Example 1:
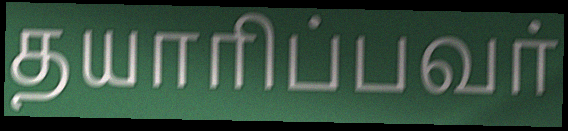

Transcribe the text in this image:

தயாரிப்பவர்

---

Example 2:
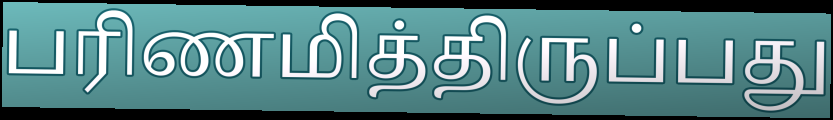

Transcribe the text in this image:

பரிணமித்திருப்பது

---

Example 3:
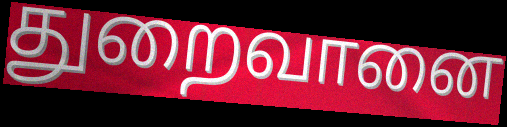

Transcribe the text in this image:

துறைவானை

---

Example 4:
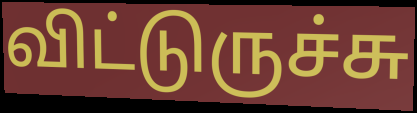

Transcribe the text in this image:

விட்டுருச்சு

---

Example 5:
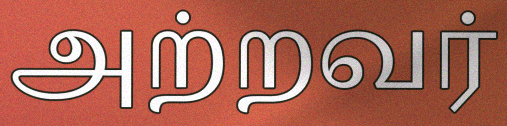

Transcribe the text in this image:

அற்றவர்